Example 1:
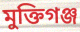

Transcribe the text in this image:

মুক্তিগঞ্জ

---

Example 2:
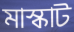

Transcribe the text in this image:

মাস্কাট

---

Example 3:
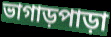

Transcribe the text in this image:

ভাগাড়পাড়া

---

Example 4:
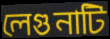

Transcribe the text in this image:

লেগুনাটি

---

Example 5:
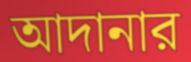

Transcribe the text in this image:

আদানার